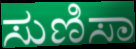
ಸುಣಿಸಾ